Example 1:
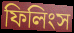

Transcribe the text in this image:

ফিলিংস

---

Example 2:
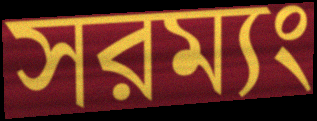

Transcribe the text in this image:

সরম্যং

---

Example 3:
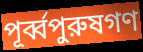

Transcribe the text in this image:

পূর্ব্বপুরুষগণ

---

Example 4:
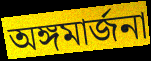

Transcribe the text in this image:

অঙ্গমার্জনা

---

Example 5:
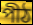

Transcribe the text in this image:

পীঠ